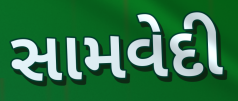
સામવેદી